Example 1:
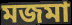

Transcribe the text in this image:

মজমা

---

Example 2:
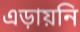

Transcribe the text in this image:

এড়ায়নি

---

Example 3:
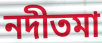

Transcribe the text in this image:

নদীতমা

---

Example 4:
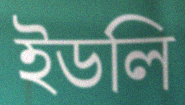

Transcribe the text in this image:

ইডলি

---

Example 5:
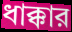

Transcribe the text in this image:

ধাক্কার